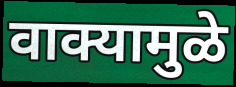
वाक्यामुळे